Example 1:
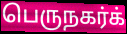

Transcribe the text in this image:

பெருநகர்க்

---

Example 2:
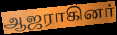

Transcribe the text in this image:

ஆஜராகினர்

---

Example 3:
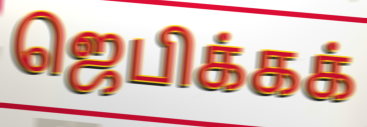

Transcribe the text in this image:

ஜெபிக்கக்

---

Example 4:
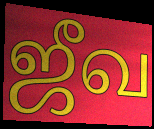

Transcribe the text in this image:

ஜீவ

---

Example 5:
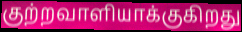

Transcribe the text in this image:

குற்றவாளியாக்குகிறது